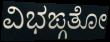
ವಿಭಙ್ಗತೋ